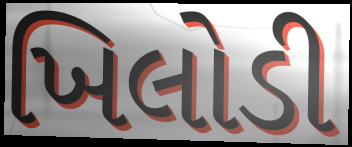
ખિલોડી